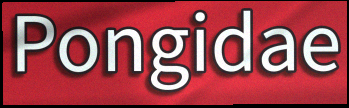
Pongidae